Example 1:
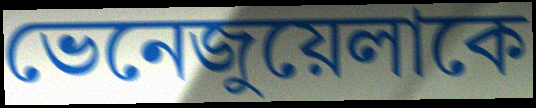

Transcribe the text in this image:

ভেনেজুয়েলাকে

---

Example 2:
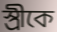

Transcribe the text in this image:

স্ত্রীকে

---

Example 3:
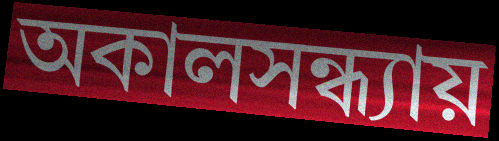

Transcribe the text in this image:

অকালসন্ধ্যায়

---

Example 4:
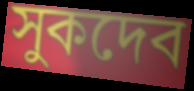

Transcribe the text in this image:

সুকদেব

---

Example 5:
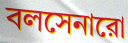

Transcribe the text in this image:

বলসেনারো